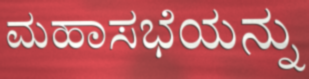
ಮಹಾಸಭೆಯನ್ನು